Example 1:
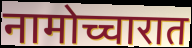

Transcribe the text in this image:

नामोच्चारात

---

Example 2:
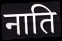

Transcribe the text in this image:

नाति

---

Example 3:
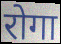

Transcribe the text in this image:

रोगा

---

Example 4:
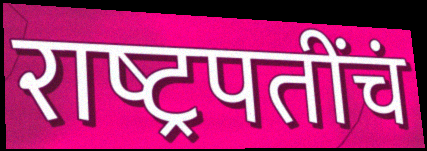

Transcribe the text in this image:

राष्ट्रपतींचं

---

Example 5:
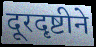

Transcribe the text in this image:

दूरदृष्टीने